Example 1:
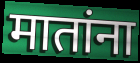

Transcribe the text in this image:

मातांना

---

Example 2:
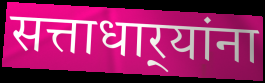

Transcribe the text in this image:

सत्ताधार्यांना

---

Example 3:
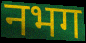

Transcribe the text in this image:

नभग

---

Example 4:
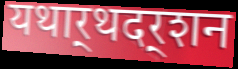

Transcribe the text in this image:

यथार्थदर्शन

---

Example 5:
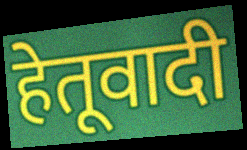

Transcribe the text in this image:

हेतूवादी